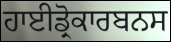
ਹਾਈਡ੍ਰੋਕਾਰਬਨਸ